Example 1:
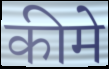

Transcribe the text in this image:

कीमे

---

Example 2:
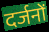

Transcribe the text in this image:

दर्जनों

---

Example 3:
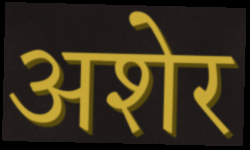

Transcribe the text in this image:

अशेर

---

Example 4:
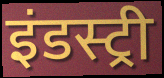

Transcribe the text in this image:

इंडस्ट्री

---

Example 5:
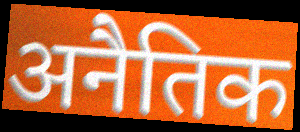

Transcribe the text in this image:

अनैतिक